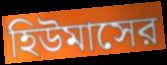
হিউমাসের